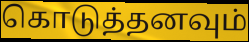
கொடுத்தனவும்